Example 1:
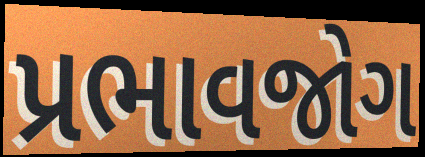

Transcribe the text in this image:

પ્રભાવજોગ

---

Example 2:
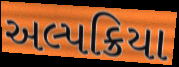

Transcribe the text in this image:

અલ્પક્રિયા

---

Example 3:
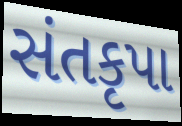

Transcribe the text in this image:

સંતકૃપા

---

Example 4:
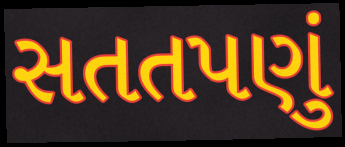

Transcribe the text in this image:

સતતપણું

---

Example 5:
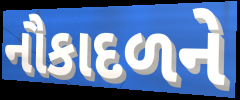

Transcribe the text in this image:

નૌકાદળને